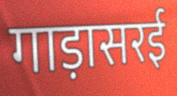
गाड़ासरई